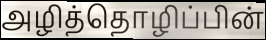
அழித்தொழிப்பின்